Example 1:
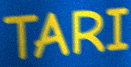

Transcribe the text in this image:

TARI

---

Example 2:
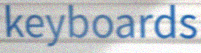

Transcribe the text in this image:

keyboards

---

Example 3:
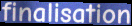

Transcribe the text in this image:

finalisation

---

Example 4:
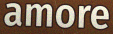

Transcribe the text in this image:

amore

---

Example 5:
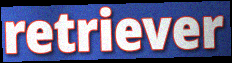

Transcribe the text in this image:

retriever